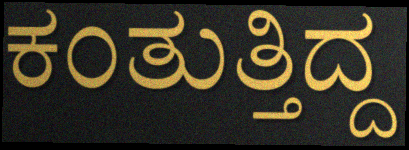
ಕಂತುತ್ತಿದ್ದ